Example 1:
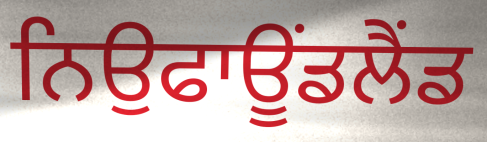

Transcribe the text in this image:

ਨਿਉਫਾਊਂਡਲੈਂਡ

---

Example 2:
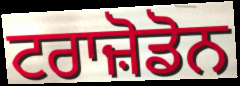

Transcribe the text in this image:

ਟਰਾਜ਼ੋਡੋਨ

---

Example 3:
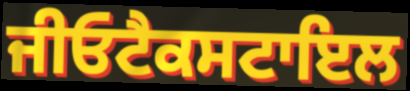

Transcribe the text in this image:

ਜੀਓਟੈਕਸਟਾਇਲ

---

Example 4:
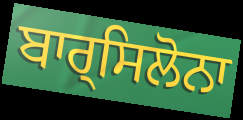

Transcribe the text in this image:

ਬਾਰ੍ਸਿਲੋਨਾ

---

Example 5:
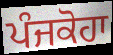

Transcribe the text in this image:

ਪੰਜਕੋਹਾ